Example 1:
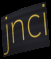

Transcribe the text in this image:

jnci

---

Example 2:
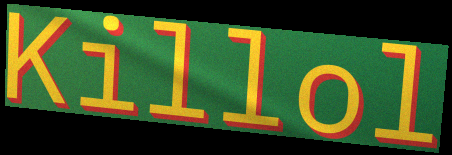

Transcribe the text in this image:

Killol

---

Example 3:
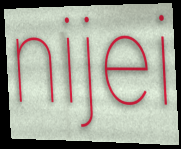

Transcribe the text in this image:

nijei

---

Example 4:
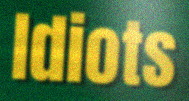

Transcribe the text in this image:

Idiots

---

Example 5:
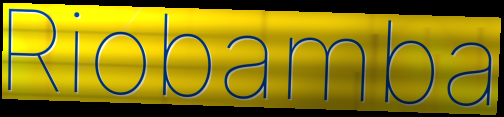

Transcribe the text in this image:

Riobamba